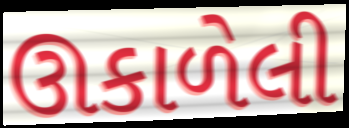
ઊકાળેલી